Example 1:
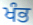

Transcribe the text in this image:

ਖੰਭ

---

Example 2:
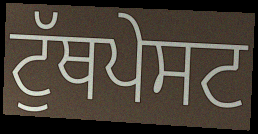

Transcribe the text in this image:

ਟੁੱਥਪੇਸਟ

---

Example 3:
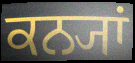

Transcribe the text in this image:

ਕਨ੍ਯਾਂ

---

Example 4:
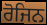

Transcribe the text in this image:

ਰੋਜਿਨ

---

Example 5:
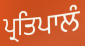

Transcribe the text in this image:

ਪ੍ਰਤਿਪਾਲੰ